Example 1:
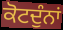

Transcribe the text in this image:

ਕੋਟਦੁੰਨਾਂ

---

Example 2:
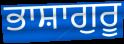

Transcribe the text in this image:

ਭਾਸ਼ਾਗੁਰੂ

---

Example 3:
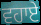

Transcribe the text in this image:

ਵਹਾਏ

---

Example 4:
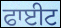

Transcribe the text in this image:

ਫਾਈਟ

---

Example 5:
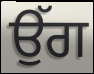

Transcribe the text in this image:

ਉੱਗ